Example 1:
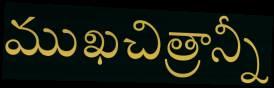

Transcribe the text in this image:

ముఖచిత్రాన్నీ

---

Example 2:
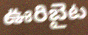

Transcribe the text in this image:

ఊరిబైట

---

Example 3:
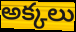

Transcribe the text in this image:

అక్కలు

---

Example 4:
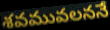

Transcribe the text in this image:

శవమువలననే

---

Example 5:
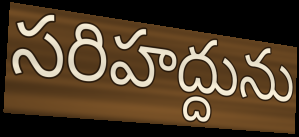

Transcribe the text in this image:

సరిహద్దును